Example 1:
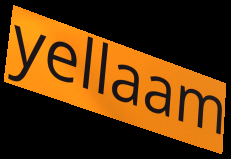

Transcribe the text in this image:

yellaam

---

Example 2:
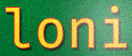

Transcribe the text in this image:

loni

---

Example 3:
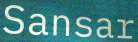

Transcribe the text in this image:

Sansar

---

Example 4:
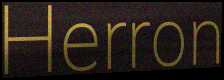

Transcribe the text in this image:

Herron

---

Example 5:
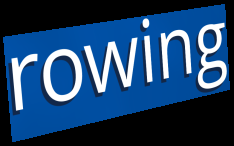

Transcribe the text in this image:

rowing